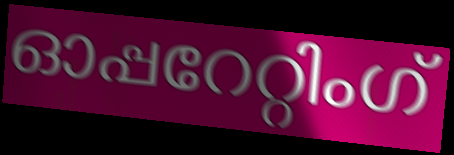
ഓപ്പറേറ്റിംഗ്